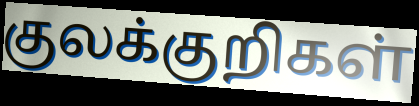
குலக்குறிகள்